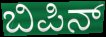
ಬಿಪಿನ್